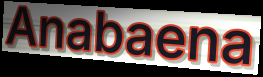
Anabaena